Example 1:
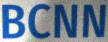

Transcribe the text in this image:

BCNN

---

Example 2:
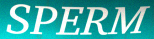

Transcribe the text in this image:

SPERM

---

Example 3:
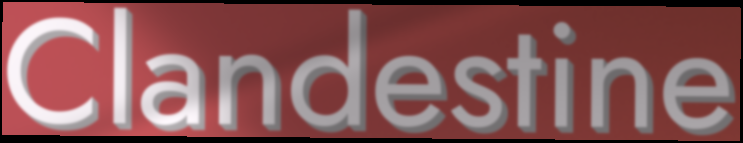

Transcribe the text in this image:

Clandestine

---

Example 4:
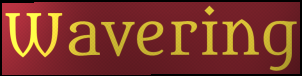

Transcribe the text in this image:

Wavering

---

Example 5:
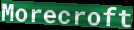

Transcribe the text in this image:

Morecroft